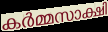
കർമ്മസാക്ഷി